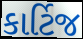
કાર્ટિજ